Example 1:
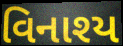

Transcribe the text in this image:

વિનાશ્ય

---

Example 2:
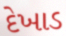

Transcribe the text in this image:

દેખાડ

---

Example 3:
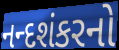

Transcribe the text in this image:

નન્દશંકરનો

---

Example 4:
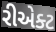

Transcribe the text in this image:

રીએક્ટ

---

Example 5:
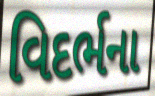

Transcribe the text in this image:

વિદર્ભના